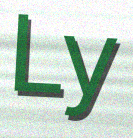
Ly